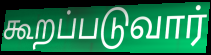
கூறப்படுவார்